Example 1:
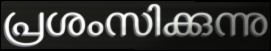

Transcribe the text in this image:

പ്രശംസിക്കുന്നു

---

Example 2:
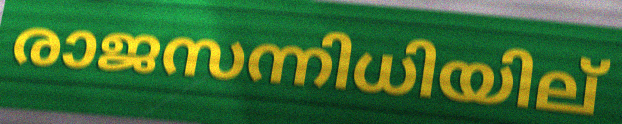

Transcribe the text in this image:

രാജസന്നിധിയില്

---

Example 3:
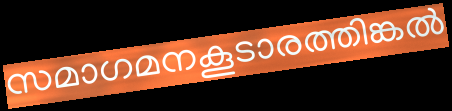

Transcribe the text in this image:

സമാഗമനകൂടാരത്തിങ്കൽ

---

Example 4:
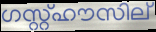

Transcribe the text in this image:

ഗസ്റ്റ്ഹൗസില്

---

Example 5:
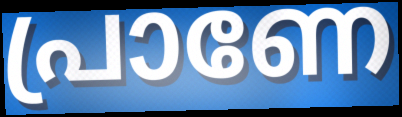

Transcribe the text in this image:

പ്രാണേ